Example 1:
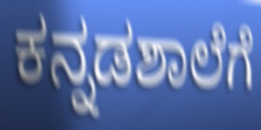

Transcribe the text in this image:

ಕನ್ನಡಶಾಲೆಗೆ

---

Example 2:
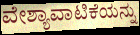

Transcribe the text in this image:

ವೇಶ್ಯಾವಾಟಿಕೆಯನ್ನು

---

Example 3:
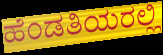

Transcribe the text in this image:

ಹೆಂಡತಿಯರಲ್ಲಿ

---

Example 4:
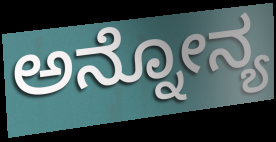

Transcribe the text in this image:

ಅನ್ನೋನ್ಯ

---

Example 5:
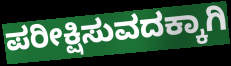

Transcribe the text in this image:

ಪರೀಕ್ಷಿಸುವದಕ್ಕಾಗಿ